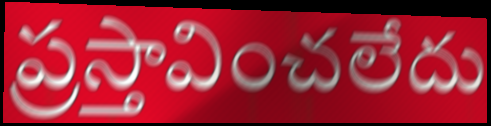
ప్రస్తావించలేదు